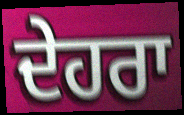
ਦੇਹਰਾ